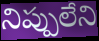
నిప్పులేని